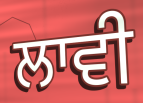
ਲਾਵੀ